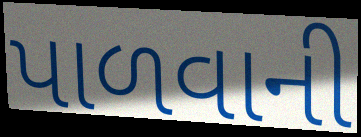
પાળવાની